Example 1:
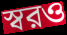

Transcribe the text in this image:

স্বরও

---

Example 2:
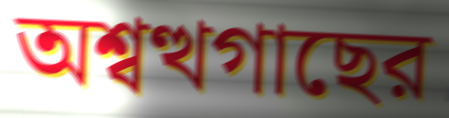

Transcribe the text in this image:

অশ্বত্থগাছের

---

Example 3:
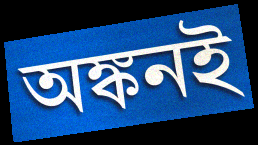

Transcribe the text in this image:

অঙ্কনই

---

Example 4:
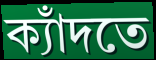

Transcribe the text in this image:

ক্যাঁদতে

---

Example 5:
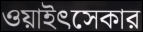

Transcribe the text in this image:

ওয়াইৎসেকার